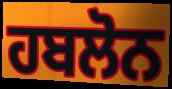
ਹਬਲੋਨ